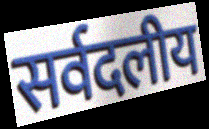
सर्वदलीय